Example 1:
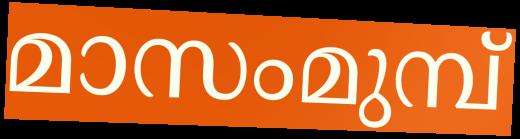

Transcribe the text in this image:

മാസംമുമ്പ്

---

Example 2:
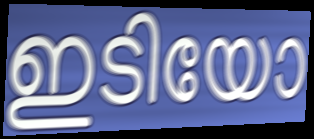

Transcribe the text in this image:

ഇടിയോ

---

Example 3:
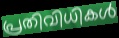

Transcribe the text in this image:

പ്രതിവിധികൾ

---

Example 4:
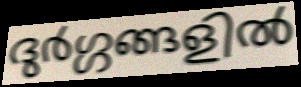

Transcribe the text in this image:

ദുർഗ്ഗങ്ങളിൽ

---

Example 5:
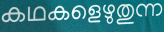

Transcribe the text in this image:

കഥകളെഴുതുന്ന